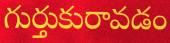
గుర్తుకురావడం